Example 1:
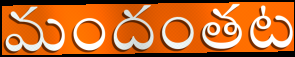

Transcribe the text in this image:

మందంతట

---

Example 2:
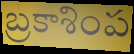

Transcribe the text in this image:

బ్రకాశింప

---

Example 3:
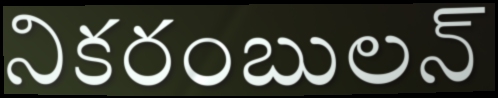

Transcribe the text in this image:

నికరంబులన్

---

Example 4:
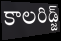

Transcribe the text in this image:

కాలరిడ్జ్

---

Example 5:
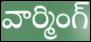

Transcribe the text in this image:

వార్మింగ్